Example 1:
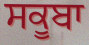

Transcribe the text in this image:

ਸਕੂਬਾ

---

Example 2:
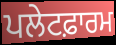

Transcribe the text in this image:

ਪਲੇਟਫ਼ਾਰਮ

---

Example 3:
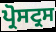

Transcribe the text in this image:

ਪ੍ਰੋਸਟ੍ਰਸ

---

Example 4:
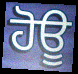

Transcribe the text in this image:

ਹੋਊ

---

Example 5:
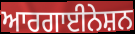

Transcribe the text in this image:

ਆਰਗਾਈਨੇਸ਼ਨ